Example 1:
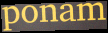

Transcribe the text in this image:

ponam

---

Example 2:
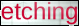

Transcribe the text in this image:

etching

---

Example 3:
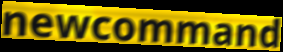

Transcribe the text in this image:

newcommand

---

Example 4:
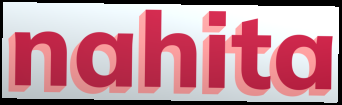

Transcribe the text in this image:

nahita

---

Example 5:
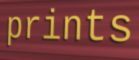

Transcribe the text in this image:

prints